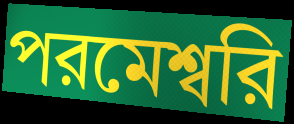
পরমেশ্বরি